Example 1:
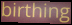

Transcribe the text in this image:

birthing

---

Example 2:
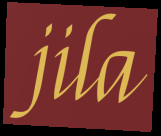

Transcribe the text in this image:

jila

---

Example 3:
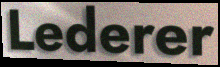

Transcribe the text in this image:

Lederer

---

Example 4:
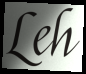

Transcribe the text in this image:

Leh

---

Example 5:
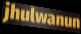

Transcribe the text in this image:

jhulwanun